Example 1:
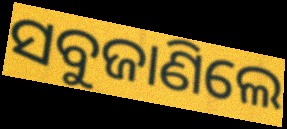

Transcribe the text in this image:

ସବୁଜାଣିଲେ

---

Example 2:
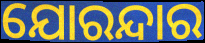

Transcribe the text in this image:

ଯୋରନ୍ଦାର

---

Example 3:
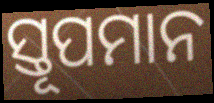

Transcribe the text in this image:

ସ୍ତୂପମାନ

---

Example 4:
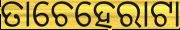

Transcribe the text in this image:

ତାଚେହେରାଟା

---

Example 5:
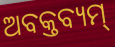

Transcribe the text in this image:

ଅବକ୍ତବ୍ୟମ୍